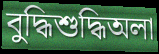
বুদ্ধিশুদ্ধিঅলা